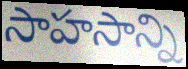
సాహసాన్ని